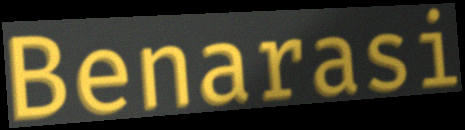
Benarasi